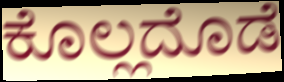
ಕೊಲ್ಲದೊಡೆ